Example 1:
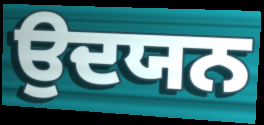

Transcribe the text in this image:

ਉਦਯਨ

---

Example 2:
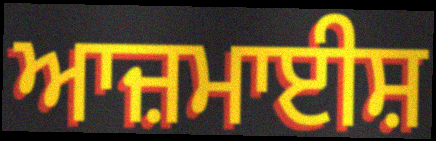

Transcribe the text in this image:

ਆਜ਼ਮਾਈਸ਼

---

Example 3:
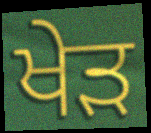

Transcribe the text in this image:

ਖੇੜ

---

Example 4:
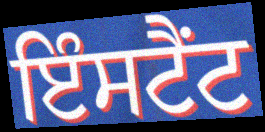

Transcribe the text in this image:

ਇੰਸਟੈਂਟ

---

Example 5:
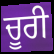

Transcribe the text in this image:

ਚੂਰੀ